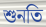
শুনতি